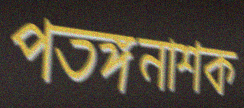
পতঙ্গনাশক